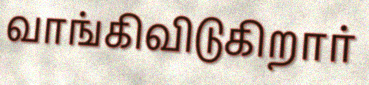
வாங்கிவிடுகிறார்